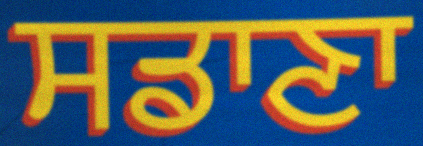
ਸਡਾਣਾ